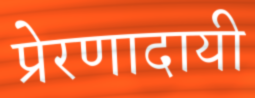
प्रेरणादायी